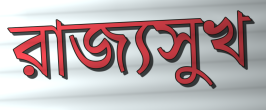
রাজ্যসুখ